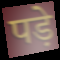
पड़े